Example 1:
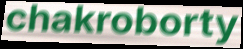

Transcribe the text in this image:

chakroborty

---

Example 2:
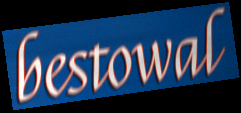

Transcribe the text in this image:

bestowal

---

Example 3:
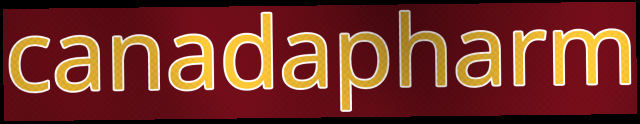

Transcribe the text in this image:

canadapharm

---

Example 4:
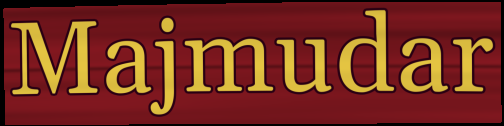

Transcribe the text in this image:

Majmudar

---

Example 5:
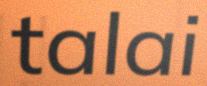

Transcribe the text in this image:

talai